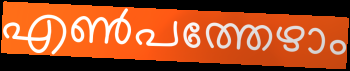
എൺപത്തേഴാം